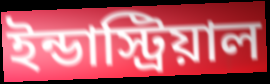
ইন্ডাস্ট্রিয়াল